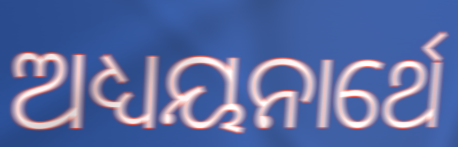
ଅଧ୍ୟୟନାର୍ଥେ